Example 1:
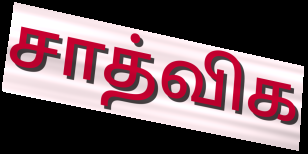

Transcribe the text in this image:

சாத்விக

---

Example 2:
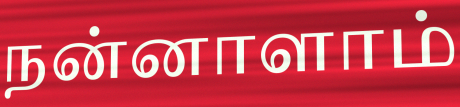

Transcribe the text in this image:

நன்னாளாம்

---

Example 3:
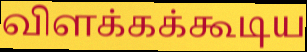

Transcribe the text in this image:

விளக்கக்கூடிய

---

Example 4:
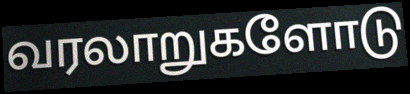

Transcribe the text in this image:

வரலாறுகளோடு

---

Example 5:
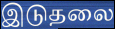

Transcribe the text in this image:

இடுதலை